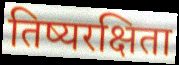
तिष्यरक्षिता